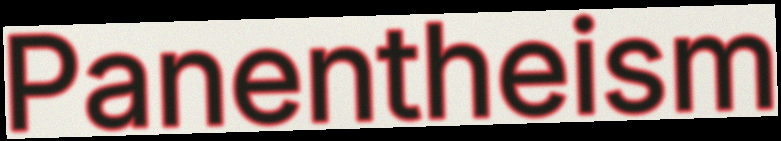
Panentheism